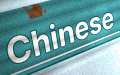
Chinese